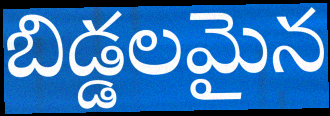
బిడ్డలమైన